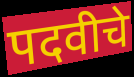
पदवीचे